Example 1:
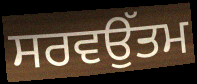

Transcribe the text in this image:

ਸਰਵਉੱਤਮ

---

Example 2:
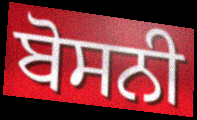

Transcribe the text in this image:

ਬੋਸਨੀ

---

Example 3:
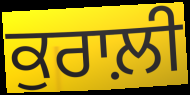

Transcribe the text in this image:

ਕੁਰਾਲ਼ੀ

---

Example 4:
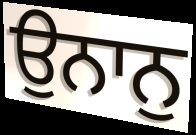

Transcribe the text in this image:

ਉਨਾਨੁ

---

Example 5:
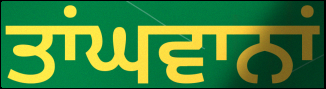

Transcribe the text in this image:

ਤਾਂਘਵਾਨਾਂ